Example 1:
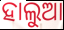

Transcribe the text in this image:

ହାଲୁଆ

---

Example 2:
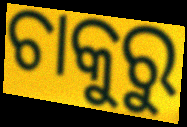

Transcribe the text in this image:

ଚାକୁରୁ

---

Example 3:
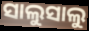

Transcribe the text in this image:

ସାଲୁସାଲୁ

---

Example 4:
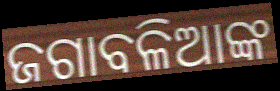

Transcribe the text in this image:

ଜଗାବଳିଆଙ୍କ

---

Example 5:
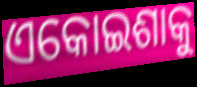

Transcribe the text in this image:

ଏକୋଇଶାକୁ